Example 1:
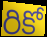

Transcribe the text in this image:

రికో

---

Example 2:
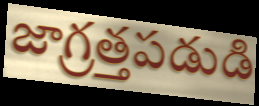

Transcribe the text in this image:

జాగ్రత్తపడుడి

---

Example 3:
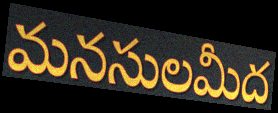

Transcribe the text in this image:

మనసులమీద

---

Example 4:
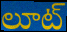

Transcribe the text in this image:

లూట్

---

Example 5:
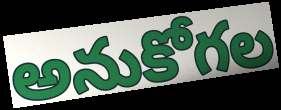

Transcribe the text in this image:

అనుకోగల